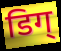
डिग्